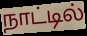
நாட்டில்